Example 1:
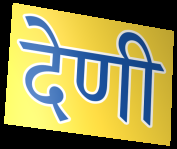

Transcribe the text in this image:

देणी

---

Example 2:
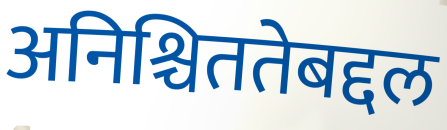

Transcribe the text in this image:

अनिश्चिततेबद्दल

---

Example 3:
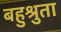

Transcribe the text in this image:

बहुश्रुता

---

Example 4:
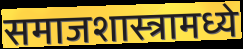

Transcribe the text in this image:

समाजशास्त्रामध्ये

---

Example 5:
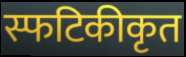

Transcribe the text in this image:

स्फटिकीकृत